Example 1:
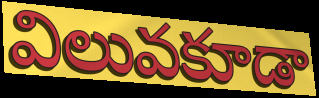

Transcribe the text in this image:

విలువకూడా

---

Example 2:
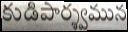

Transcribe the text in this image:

కుడిపార్శ్వమున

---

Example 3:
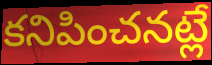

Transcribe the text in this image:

కనిపించనట్లే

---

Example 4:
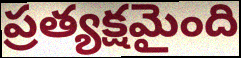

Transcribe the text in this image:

ప్రత్యక్షమైంది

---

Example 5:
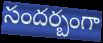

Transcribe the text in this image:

సందర్బంగా